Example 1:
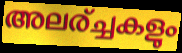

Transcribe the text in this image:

അലര്ച്ചകളും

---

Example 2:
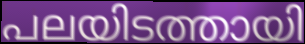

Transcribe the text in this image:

പലയിടത്തായി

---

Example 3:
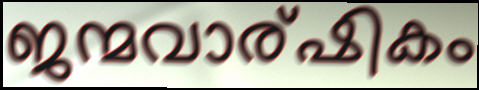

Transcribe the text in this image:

ജന്മവാര്ഷികം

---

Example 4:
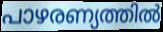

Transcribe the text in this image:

പാഴരണ്യത്തിൽ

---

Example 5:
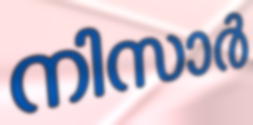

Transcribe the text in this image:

നിസാർ